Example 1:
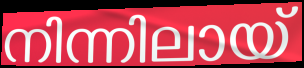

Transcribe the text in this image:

നിന്നിലായ്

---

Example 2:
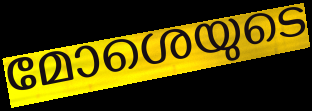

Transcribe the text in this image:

മോശെയുടെ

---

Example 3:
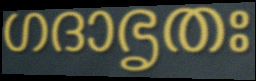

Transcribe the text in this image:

ഗദാഭൃതഃ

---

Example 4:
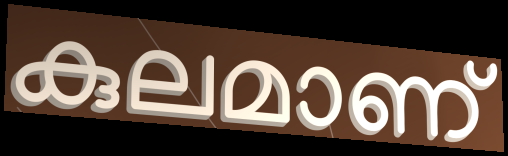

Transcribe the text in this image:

കുലമാണ്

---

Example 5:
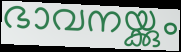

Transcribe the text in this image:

ഭാവനയ്ക്കും